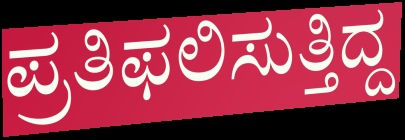
ಪ್ರತಿಫಲಿಸುತ್ತಿದ್ದ